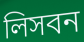
লিসবন